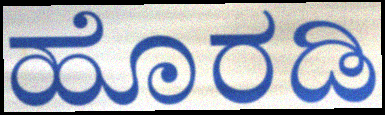
ಹೊರಡಿ